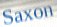
Saxon